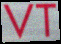
VT